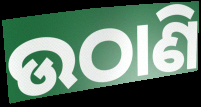
ଉଠାଣି